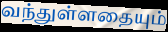
வந்துள்ளதையும்